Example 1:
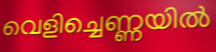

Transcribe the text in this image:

വെളിച്ചെണ്ണയിൽ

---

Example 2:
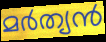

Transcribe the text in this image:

മർത്യൻ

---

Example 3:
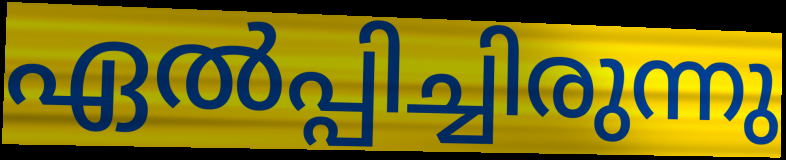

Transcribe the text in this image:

ഏൽപ്പിച്ചിരുന്നു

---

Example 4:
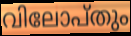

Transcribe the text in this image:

വിലോപ്തും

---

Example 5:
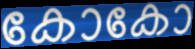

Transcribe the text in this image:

കോകോ